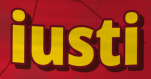
iusti